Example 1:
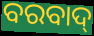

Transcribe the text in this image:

ବରବାଦ୍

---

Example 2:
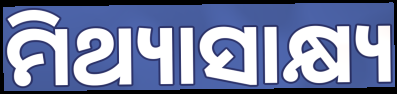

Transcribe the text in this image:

ମିଥ୍ୟାସାକ୍ଷ୍ୟ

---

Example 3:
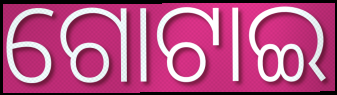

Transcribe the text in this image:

ଗୋଟାଇ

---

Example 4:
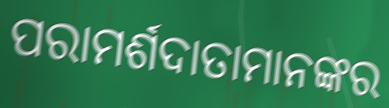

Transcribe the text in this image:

ପରାମର୍ଶଦାତାମାନଙ୍କର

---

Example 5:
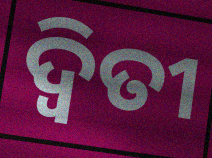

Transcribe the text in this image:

ଦ୍ୱିତୀ